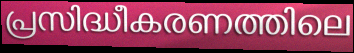
പ്രസിദ്ധീകരണത്തിലെ